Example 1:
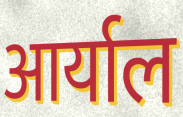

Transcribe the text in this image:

आर्याल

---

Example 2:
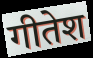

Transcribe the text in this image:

गीतेश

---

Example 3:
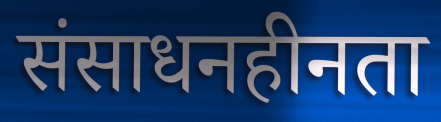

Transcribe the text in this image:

संसाधनहीनता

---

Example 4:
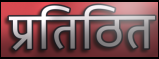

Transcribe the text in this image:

प्रतिठित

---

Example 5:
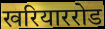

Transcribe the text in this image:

खरियाररोड